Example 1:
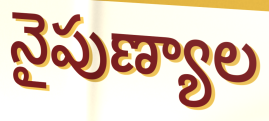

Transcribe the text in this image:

నైపుణ్యాల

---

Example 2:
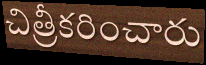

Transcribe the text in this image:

చిత్రీకరించారు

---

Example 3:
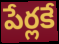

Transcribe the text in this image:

పేర్లకే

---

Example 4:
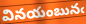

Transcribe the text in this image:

వినయంబునఁ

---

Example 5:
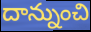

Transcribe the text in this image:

దాన్నుంచి